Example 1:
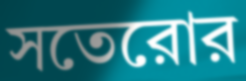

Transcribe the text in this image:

সতেরোর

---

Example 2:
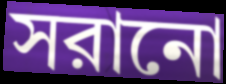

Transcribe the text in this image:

সরানো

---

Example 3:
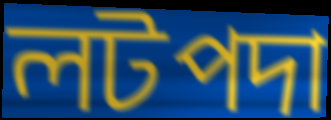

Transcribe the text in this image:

লটপদা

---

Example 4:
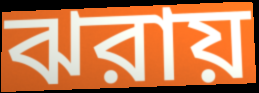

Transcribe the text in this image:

ঝরায়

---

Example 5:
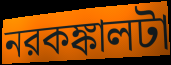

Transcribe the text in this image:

নরকঙ্কালটা